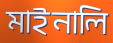
মাইনালি